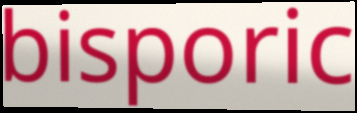
bisporic